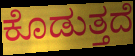
ಕೊಡುತ್ತದೆ